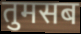
तुमसब